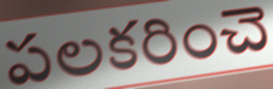
పలకరించె